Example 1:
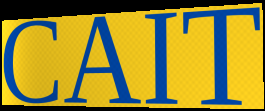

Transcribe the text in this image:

CAIT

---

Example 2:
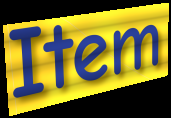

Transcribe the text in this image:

Item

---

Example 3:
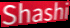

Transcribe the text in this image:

Shashi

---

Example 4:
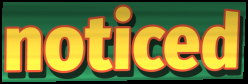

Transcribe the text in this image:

noticed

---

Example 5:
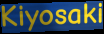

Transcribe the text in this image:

Kiyosaki